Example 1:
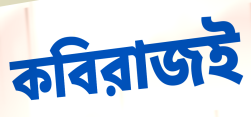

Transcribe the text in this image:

কবিরাজই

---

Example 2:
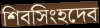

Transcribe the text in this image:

শিবসিংহদেব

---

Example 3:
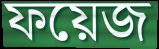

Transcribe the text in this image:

ফয়েজ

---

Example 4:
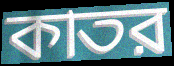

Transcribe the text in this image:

কাতর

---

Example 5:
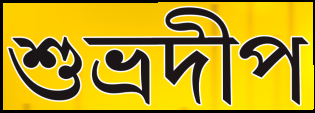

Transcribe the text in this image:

শুভ্রদীপ